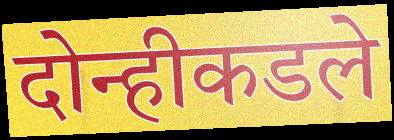
दोन्हीकडले